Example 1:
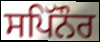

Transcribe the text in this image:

ਸਪਿੱਨੌਰ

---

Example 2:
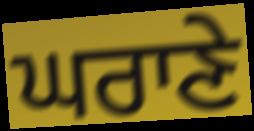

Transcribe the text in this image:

ਘਰਾਣੇ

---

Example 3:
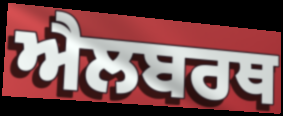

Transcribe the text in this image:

ਐਲਬਰਥ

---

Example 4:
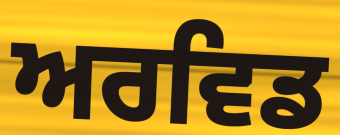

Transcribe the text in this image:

ਅਰਵਿਡ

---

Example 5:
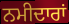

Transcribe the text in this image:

ਨਮੀਦਾਰਾਂ